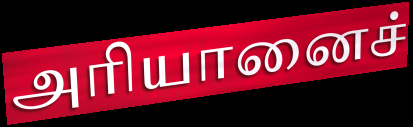
அரியானைச்